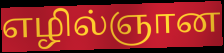
எழில்ஞான